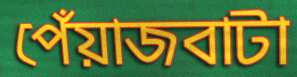
পেঁয়াজবাটা